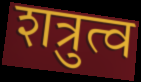
शत्रुत्व